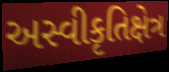
અસ્વીકૃતિક્ષેત્ર